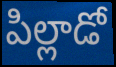
పిల్లాడో